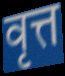
वृत्त